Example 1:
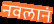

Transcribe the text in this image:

नवलानं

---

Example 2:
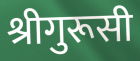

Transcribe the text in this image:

श्रीगुरूसी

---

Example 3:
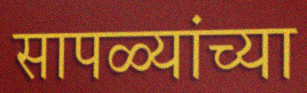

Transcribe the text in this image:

सापळ्यांच्या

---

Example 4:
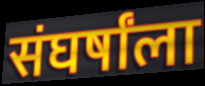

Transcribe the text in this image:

संघर्षांला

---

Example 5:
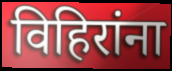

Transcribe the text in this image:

विहिरांना